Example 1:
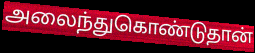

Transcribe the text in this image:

அலைந்துகொண்டுதான்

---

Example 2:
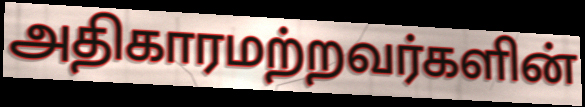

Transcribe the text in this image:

அதிகாரமற்றவர்களின்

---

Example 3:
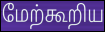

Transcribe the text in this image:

மேற்கூறிய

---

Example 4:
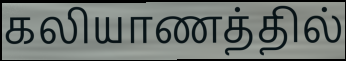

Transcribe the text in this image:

கலியாணத்தில்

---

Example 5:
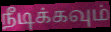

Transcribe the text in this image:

நீடிக்கவும்